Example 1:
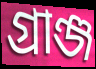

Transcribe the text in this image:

গ্রাঞ্জ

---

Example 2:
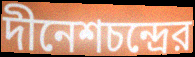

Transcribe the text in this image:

দীনেশচন্দ্রের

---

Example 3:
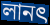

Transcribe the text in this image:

লানৎ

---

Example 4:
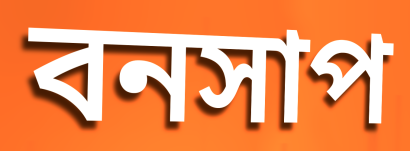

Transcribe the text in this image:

বনসাপ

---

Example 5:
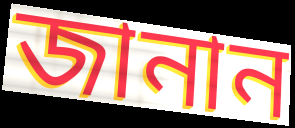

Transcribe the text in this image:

জানান